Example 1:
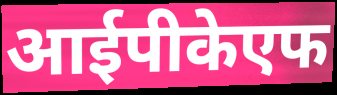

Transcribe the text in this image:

आईपीकेएफ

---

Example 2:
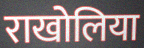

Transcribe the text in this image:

राखोलिया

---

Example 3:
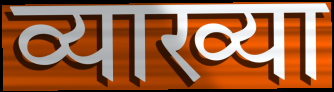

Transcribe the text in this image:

व्याख्‍या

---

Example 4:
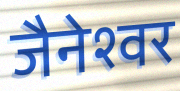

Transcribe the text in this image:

जैनेश्वर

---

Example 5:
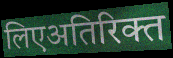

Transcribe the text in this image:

लिएअतिरिक्त